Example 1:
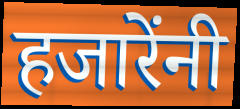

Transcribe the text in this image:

हजारेंनी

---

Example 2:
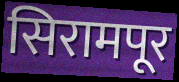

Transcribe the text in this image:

सिरामपूर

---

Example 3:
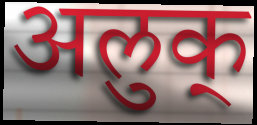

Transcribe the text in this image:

अलुक्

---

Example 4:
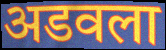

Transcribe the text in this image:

अडवला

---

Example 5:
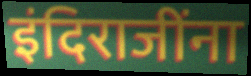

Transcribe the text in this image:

इंदिराजींना